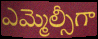
ఎమ్మెల్సీగా